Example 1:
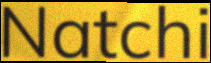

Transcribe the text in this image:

Natchi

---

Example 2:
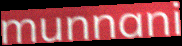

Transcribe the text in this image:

munnani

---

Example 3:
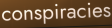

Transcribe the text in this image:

conspiracies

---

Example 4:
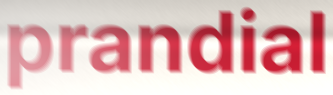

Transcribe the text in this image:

prandial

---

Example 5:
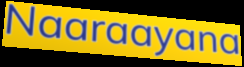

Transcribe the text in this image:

Naaraayana